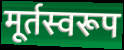
मूर्तस्वरूप